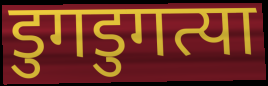
डुगडुगत्या